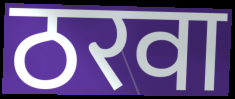
ठरवा